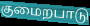
குமைறபாடு